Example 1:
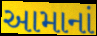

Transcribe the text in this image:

આમાનાં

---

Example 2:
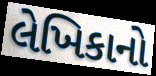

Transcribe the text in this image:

લેખિકાનો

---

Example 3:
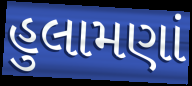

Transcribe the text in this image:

હુલામણાં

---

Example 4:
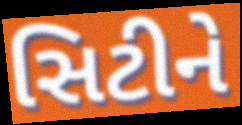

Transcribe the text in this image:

સિટીને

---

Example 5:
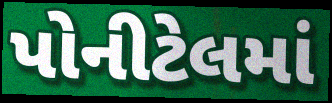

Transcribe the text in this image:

પોનીટેલમાં